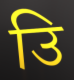
उि